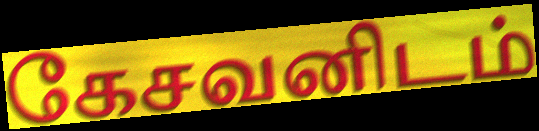
கேசவனிடம்